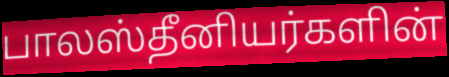
பாலஸ்தீனியர்களின்